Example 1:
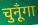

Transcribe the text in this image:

चुनूँगा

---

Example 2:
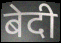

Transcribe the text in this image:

बेदी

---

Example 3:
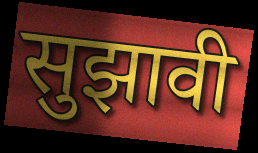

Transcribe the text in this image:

सुझावी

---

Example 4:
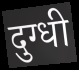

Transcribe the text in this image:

दुग्धी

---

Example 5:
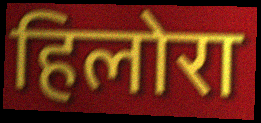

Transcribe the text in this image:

हिलोरा